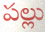
పల్లు